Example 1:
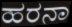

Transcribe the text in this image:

ಹರನಾ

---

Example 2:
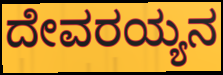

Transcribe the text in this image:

ದೇವರಯ್ಯನ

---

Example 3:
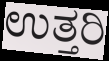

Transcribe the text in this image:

ಉತ್ತರಿ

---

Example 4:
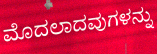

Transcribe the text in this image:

ಮೊದಲಾದವುಗಳನ್ನು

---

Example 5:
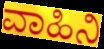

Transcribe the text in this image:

ವಾಹಿನಿ